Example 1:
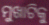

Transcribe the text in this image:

ମୁଖାଟିକୁ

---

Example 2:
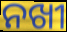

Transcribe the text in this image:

ନଖୀ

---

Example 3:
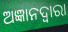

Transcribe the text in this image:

ଅଜ୍ଞାନଦ୍ଵାରା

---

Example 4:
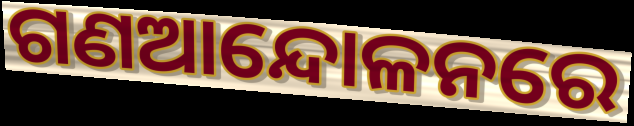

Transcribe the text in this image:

ଗଣଆନ୍ଦୋଳନରେ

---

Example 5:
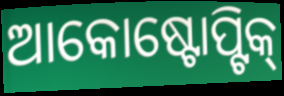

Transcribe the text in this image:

ଆକୋଷ୍ଟୋପ୍ଟିକ୍